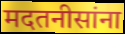
मदतनीसांना